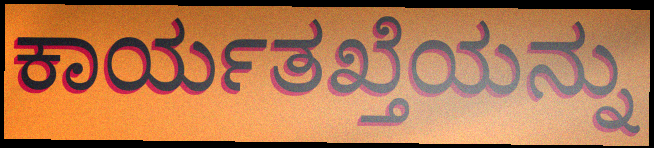
ಕಾರ್ಯತಖ್ತೆಯನ್ನು